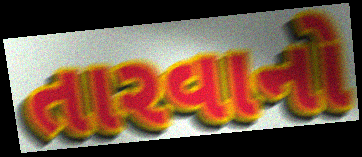
તારવાનો